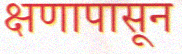
क्षणापासून